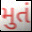
મુતં